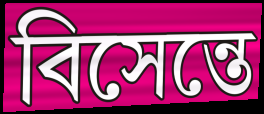
বিসেন্তে